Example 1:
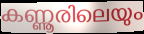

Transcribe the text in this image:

കണ്ണൂരിലെയും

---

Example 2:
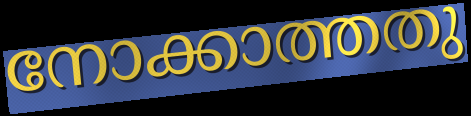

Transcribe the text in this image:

നോക്കാത്തതു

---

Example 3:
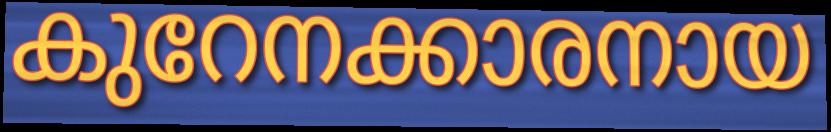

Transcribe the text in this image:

കുറേനക്കാരനായ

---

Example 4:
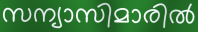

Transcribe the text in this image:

സന്യാസിമാരിൽ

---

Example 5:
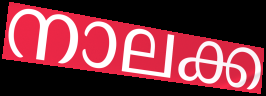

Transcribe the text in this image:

നാലക്ക